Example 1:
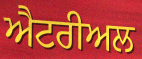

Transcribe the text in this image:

ਐਟਰੀਅਲ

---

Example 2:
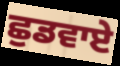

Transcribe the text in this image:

ਛੁਡਵਾਏ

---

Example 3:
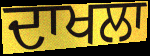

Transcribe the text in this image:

ਦਾਖਲਾ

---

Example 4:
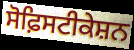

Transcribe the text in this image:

ਸੋਫ਼ਿਸਟੀਕੇਸ਼ਨ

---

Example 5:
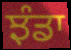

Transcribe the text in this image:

ਝੰਡਾ